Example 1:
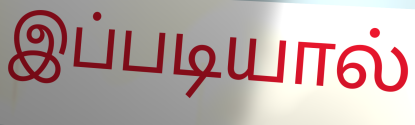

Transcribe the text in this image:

இப்படியால்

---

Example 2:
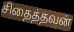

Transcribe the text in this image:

சிதைத்தவன்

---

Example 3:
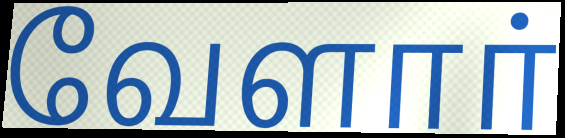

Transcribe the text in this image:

வேளார்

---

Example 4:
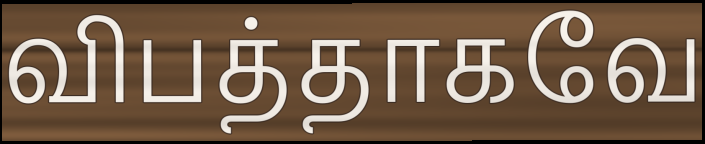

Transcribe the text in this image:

விபத்தாகவே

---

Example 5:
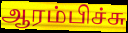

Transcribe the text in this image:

ஆரம்பிச்சு